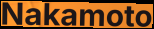
Nakamoto